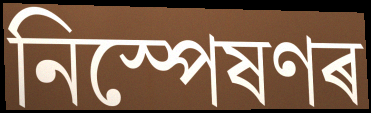
নিস্পেষণৰ